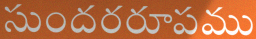
సుందరరూపము